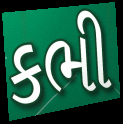
કભી